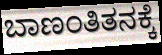
ಬಾಣಂತಿತನಕ್ಕೆ